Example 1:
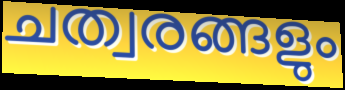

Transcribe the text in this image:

ചത്വരങ്ങളും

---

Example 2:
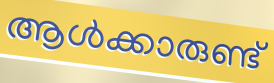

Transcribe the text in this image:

ആൾക്കാരുണ്ട്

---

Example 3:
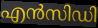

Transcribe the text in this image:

എൻസിഡി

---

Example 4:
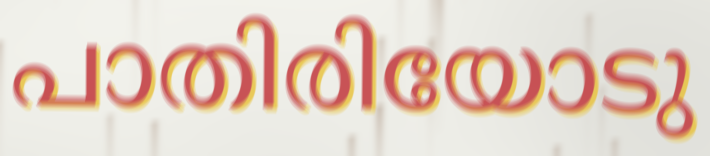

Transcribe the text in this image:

പാതിരിയോടു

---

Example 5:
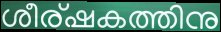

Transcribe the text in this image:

ശീര്ഷകത്തിനു